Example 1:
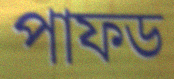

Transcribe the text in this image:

পাফড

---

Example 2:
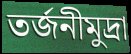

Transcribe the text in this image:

তর্জনীমুদ্রা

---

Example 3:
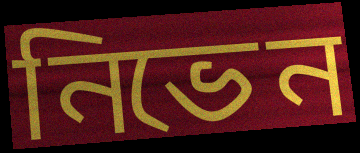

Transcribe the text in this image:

নিভেন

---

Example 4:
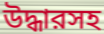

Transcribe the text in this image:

উদ্ধারসহ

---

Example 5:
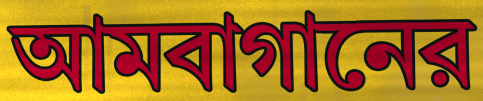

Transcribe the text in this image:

আমবাগানের